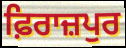
ਫ਼ਿਰਾਜ਼ਪੁਰ